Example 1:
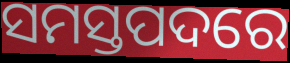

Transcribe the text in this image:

ସମସ୍ତପଦରେ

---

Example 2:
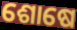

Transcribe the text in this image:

ଶୋଷେ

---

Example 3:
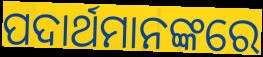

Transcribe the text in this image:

ପଦାର୍ଥମାନଙ୍କରେ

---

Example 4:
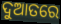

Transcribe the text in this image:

ଦୁଆତରେ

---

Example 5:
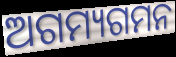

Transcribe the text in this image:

ଅଗମ୍ୟଗମନ